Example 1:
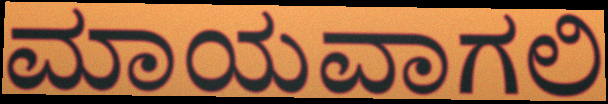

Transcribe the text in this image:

ಮಾಯವಾಗಲಿ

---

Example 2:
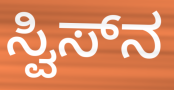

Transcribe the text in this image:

ಸ್ವಿಸ್‌ನ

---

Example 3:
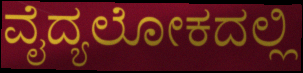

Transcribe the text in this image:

ವೈದ್ಯಲೋಕದಲ್ಲಿ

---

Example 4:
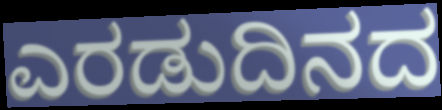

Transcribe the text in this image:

ಎರಡುದಿನದ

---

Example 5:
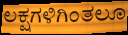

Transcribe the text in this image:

ಲಕ್ಷಗಳಿಗಿಂತಲೂ